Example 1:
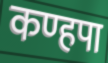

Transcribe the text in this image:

कण्हपा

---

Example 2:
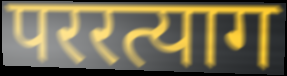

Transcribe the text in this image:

पररत्याग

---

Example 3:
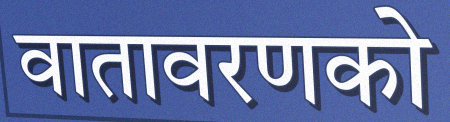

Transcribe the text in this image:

वातावरणको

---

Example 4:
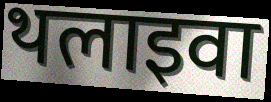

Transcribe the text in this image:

थलाइवा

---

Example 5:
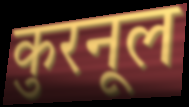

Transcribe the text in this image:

कुरनूल